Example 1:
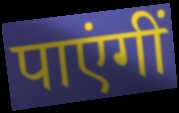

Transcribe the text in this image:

पाएंगीं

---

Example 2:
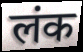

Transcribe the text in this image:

लंक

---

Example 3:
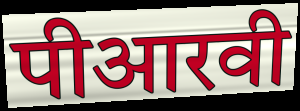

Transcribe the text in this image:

पीआरवी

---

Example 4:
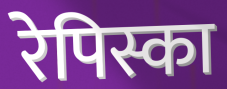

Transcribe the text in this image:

रेपिस्का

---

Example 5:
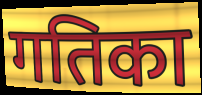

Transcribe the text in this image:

गतिका